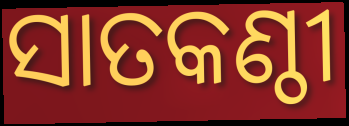
ସାତକଣ୍ଠୀ